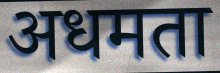
अधमता